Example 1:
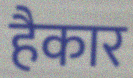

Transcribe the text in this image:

हैकार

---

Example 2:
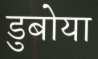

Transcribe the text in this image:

डुबोया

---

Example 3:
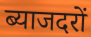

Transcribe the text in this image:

ब्याजदरों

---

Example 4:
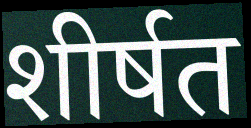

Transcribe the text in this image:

शीर्षत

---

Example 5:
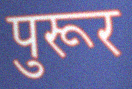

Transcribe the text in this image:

पुरूर